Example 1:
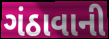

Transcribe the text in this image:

ગંઠાવાની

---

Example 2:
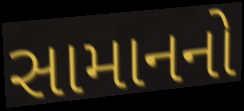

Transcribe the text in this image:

સામાનનો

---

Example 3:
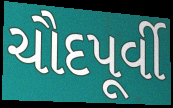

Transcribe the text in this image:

ચૌદપૂર્વી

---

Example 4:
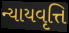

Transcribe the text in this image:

ન્યાયવૃત્તિ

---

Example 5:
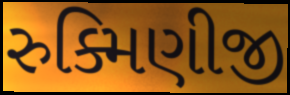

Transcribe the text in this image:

રુક્મિણીજી